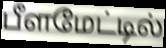
பீளமேட்டில்